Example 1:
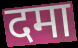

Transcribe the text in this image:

दमा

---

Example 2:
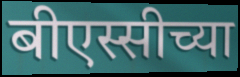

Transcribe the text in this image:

बीएस्सीच्या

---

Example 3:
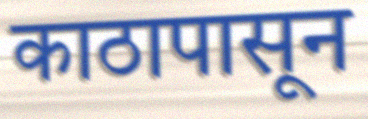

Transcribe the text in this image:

काठापासून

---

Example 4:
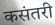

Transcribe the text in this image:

कसंतरी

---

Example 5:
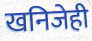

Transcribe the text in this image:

खनिजेही